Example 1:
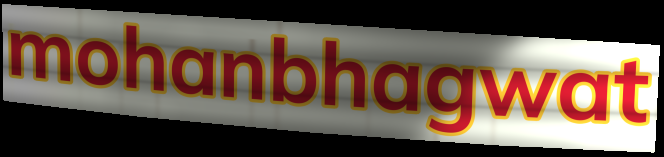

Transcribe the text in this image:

mohanbhagwat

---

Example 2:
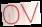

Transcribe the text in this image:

OV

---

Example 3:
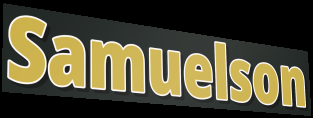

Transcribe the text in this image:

Samuelson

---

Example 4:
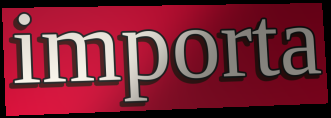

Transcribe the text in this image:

importa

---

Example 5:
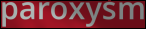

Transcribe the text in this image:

paroxysm